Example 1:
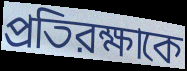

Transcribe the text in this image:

প্রতিরক্ষাকে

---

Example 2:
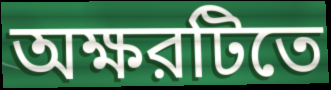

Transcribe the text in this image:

অক্ষরটিতে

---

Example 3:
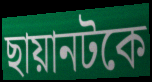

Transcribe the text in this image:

ছায়ানটকে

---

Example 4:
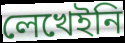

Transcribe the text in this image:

লেখেইনি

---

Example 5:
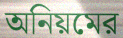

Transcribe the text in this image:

অনিয়মের